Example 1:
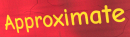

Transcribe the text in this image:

Approximate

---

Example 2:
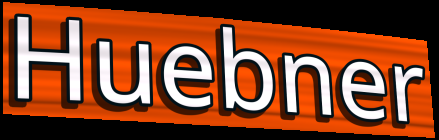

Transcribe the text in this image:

Huebner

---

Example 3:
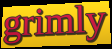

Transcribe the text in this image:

grimly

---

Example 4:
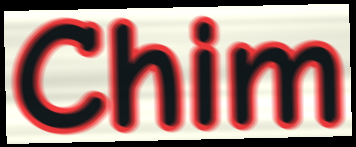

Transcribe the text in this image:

Chim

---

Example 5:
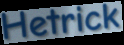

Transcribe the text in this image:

Hetrick